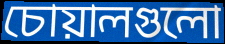
চোয়ালগুলো